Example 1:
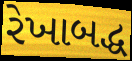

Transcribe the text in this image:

રેખાબદ્ધ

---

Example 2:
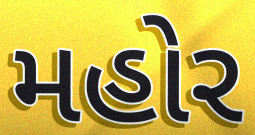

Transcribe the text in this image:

મહોર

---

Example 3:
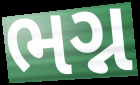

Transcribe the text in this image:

ભગ્ન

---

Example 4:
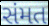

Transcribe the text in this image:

સંમત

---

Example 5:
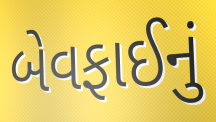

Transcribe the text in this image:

બેવફાઈનું